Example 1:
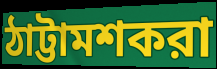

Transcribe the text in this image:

ঠাট্টামশকরা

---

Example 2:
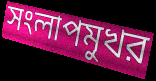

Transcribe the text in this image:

সংলাপমুখর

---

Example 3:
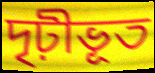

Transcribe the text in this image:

দৃঢ়ীভূত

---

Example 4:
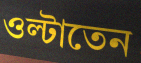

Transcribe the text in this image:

ওল্টাতেন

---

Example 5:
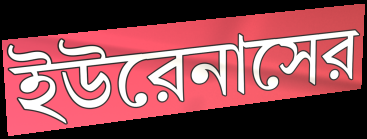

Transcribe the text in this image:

ইউরেনাসের